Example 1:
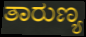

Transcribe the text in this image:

ತಾರುಣ್ಯ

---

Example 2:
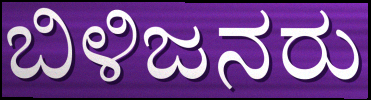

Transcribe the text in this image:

ಬಿಳಿಜನರು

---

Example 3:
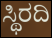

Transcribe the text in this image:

ಸ್ಥಿರದಿ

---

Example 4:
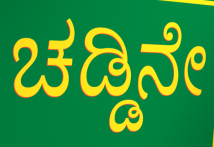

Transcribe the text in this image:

ಚಡ್ಡಿನೇ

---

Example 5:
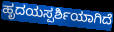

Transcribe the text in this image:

ಹೃದಯಸ್ಪರ್ಶಿಯಾಗಿದೆ